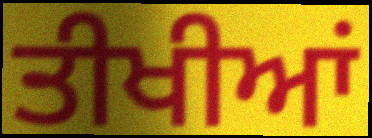
ਤੀਖੀਆਂ